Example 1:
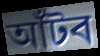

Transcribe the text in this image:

আঁটব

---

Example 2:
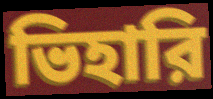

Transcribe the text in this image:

ভিহারি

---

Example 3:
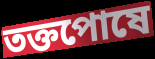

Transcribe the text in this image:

তক্তপোষে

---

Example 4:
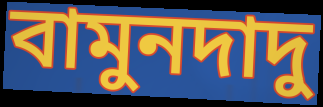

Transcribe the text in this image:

বামুনদাদু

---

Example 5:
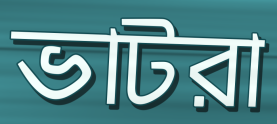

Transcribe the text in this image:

ভাটরা